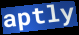
aptly